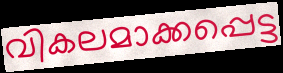
വികലമാക്കപ്പെട്ട